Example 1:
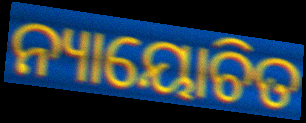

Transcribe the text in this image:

ନ୍ୟାୟୋଚିତ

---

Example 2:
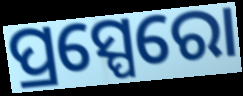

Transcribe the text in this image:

ପ୍ରସ୍ପେରୋ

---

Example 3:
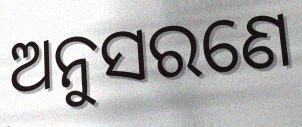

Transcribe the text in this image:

ଅନୁସରଣେ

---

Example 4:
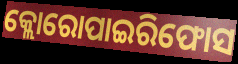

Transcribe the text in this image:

କ୍ଲୋରୋପାଇରିଫୋସ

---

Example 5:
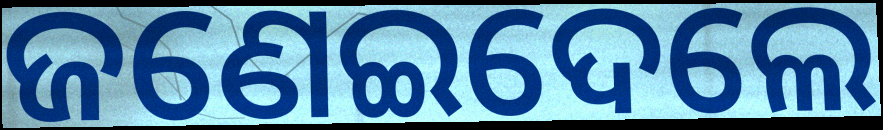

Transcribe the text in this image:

ଜଣେଇଦେଲେ